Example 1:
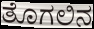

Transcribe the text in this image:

ತೊಗಲಿನ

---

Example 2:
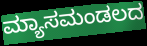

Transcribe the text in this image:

ಮ್ಯಾಸಮಂಡಲದ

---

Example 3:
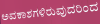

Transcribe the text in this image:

ಅವಕಾಶಗಳಿರುವುದರಿಂದ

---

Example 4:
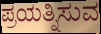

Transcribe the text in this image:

ಪ್ರಯತ್ನಿಸುವ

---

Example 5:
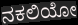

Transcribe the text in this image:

ನಕಲಿಯೋ